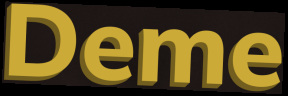
Deme